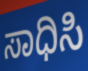
ಸಾಧಿಸಿ